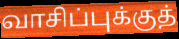
வாசிப்புக்குத்